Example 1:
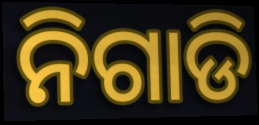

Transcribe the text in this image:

ନିଗାଡି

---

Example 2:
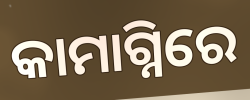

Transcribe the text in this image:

କାମାଗ୍ନିରେ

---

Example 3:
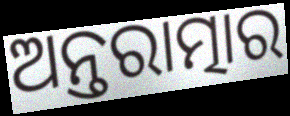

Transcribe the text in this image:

ଅନ୍ତରାତ୍ମାର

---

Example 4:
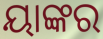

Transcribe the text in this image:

ୟାଙ୍କର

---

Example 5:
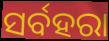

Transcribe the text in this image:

ସର୍ବହରା